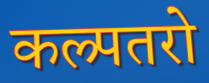
कल्पतरो